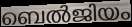
ബെൽജിയം